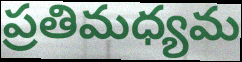
ప్రతిమధ్యమ